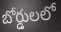
బోర్డులలో